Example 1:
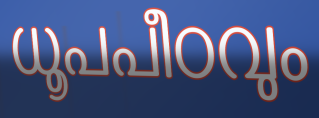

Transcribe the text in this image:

ധൂപപീഠവും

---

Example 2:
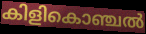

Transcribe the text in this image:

കിളികൊഞ്ചൽ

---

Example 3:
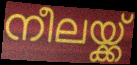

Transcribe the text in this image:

നീലയ്ക്ക്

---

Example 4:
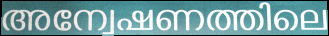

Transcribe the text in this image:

അന്വേഷണത്തിലെ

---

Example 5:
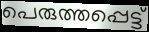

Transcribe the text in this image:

പെരുത്തപ്പെട്ട്